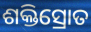
ଶକ୍ତିସ୍ରୋତ